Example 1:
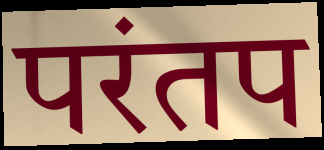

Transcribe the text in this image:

परंतप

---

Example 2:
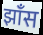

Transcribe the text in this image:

झाँस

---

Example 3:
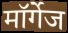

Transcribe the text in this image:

मॉर्गेज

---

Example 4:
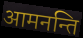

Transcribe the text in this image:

आमनन्ति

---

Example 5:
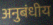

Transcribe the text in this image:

अनुबंधीय